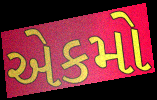
એકમો